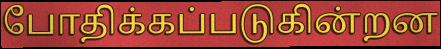
போதிக்கப்படுகின்றன